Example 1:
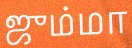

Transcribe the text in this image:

ஜும்மா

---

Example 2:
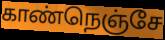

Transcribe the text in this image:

காண்நெஞ்சே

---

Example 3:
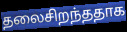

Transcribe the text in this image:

தலைசிறந்ததாக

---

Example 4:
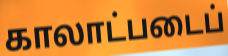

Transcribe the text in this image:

காலாட்படைப்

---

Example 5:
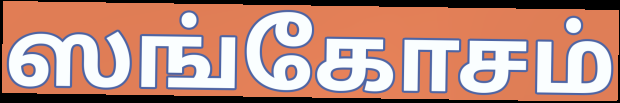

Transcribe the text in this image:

ஸங்கோசம்